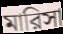
মারিসা